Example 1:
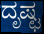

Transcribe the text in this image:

ದೃಷ್ಟ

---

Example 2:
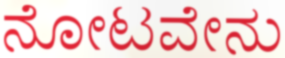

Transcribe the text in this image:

ನೋಟವೇನು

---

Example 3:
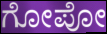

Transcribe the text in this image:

ಗೋಪೋ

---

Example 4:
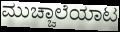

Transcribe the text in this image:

ಮುಚ್ಚಾಲೆಯಾಟ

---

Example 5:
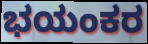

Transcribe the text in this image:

ಭಯಂಕರ